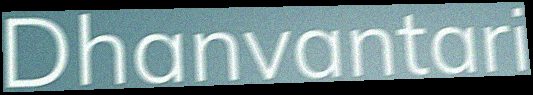
Dhanvantari